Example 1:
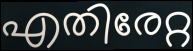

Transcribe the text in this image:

എതിരേറ്റ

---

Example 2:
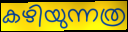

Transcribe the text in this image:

കഴിയുന്നത്ര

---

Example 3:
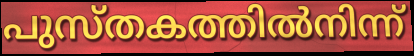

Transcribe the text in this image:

പുസ്തകത്തിൽനിന്ന്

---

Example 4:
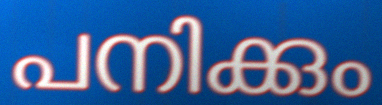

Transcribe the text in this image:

പനിക്കും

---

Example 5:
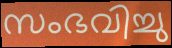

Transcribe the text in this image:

സംഭവിച്ചു